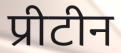
प्रीटीन